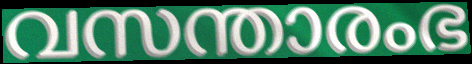
വസന്താരംഭ